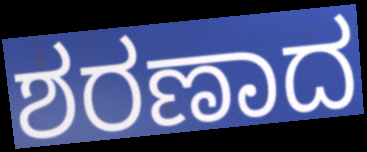
ಶರಣಾದ